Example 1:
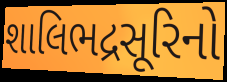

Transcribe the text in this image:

શાલિભદ્રસૂરિનો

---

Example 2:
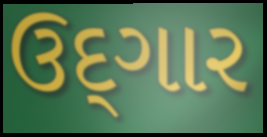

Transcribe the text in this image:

ઉદ્‌ગાર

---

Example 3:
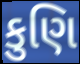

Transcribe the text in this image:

કુણિ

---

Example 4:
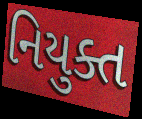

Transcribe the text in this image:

નિયુક્ત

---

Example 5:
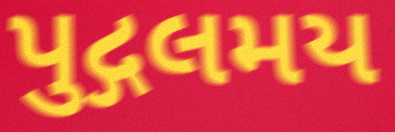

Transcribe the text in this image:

પુદ્ગલમય